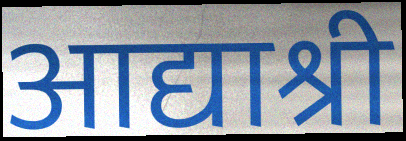
आद्याश्री